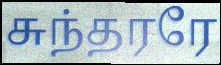
சுந்தரரே